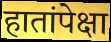
हातांपेक्षा